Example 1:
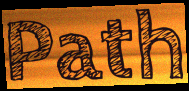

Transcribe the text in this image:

Path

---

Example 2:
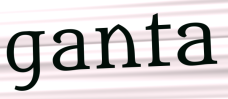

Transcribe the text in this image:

ganta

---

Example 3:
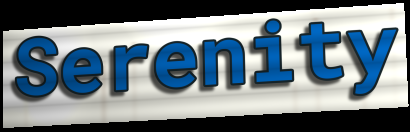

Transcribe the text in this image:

Serenity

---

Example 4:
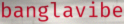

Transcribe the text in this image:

banglavibe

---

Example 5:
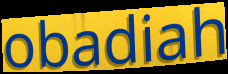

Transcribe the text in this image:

obadiah